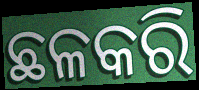
ଛଳକରି